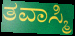
ತವಾಸ್ಮಿ